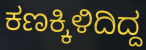
ಕಣಕ್ಕಿಳಿದಿದ್ದ